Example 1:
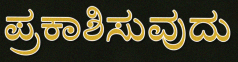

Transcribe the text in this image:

ಪ್ರಕಾಶಿಸುವುದು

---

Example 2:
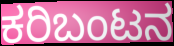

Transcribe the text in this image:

ಕರಿಬಂಟನ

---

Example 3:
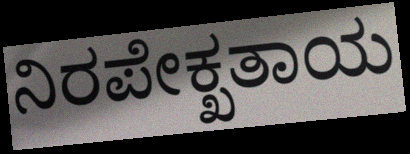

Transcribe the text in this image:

ನಿರಪೇಕ್ಖತಾಯ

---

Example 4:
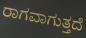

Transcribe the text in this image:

ರಾಗವಾಗುತ್ತದೆ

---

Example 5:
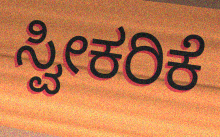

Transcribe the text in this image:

ಸ್ವೀಕರಿಕೆ